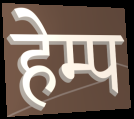
हेम्प